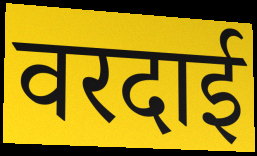
वरदाई